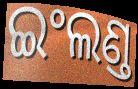
ଇଂଲଣ୍ଡ